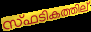
സ്ഫടികത്തില്